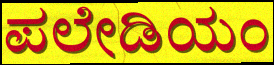
ಪಲೇಡಿಯಂ